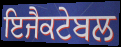
ਇਜੈਕਟੇਬਲ